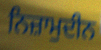
ਨਿਜ਼ਾਮੁਦੀਨ